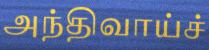
அந்திவாய்ச்